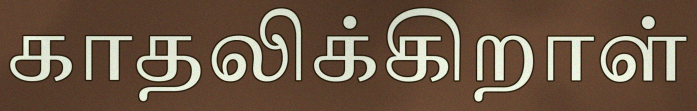
காதலிக்கிறாள்